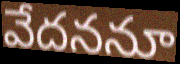
వేదననూ